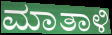
ಮಾತಾಳಿ